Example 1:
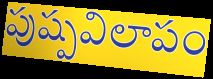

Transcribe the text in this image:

పుష్పవిలాపం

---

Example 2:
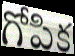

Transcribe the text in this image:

గోపిక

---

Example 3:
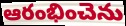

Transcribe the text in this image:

ఆరంభించెను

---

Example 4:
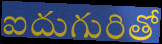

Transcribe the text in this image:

ఐదుగురితో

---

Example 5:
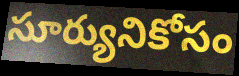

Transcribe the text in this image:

సూర్యునికోసం